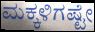
ಮಕ್ಕಳಿಗಷ್ಟೇ